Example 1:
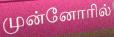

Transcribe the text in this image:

முன்னோரில்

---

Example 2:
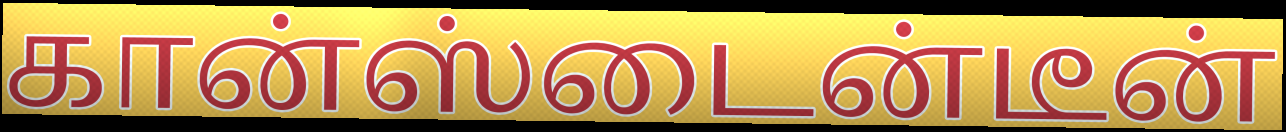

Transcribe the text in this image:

கான்ஸ்டைன்டீன்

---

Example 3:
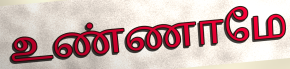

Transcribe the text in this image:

உண்ணாமே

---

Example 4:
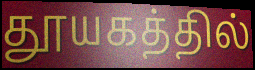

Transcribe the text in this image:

தூயகத்தில்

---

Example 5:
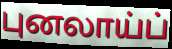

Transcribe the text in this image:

புனலாய்ப்